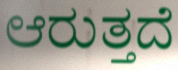
ಆರುತ್ತದೆ